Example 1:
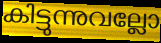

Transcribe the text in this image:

കിട്ടുന്നുവല്ലോ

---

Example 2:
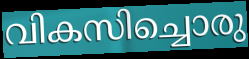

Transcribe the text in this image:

വികസിച്ചൊരു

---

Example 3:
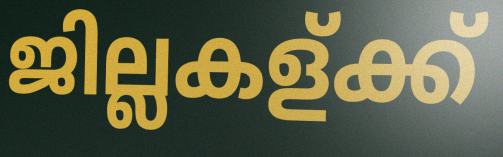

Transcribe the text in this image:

ജില്ലകള്ക്ക്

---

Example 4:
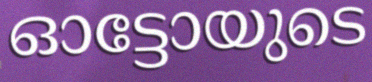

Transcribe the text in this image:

ഓട്ടോയുടെ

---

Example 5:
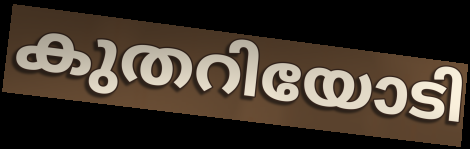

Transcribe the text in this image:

കുതറിയോടി